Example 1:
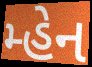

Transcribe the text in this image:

મ્હેન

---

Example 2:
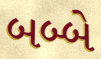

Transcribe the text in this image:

બબ્બે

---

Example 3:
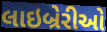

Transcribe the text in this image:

લાઇબ્રેરીઓ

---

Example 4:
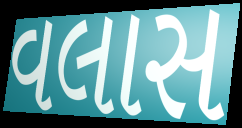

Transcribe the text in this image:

વલાસ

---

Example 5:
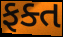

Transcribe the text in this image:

ફક્ત